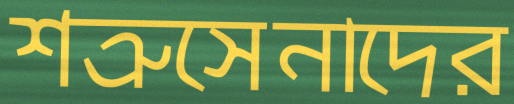
শত্রুসেনাদের